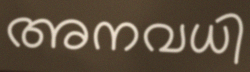
അനവധി